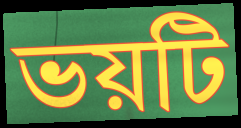
ভয়টি